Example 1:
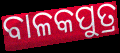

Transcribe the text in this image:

ବାଳକପୁତ୍ର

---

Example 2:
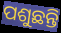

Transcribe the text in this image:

ପଶୁଛନ୍ତି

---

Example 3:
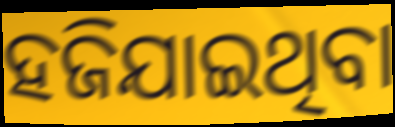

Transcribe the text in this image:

ହଜିଯାଇଥିବା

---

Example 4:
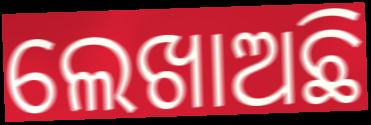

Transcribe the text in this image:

ଲେଖାଅଛି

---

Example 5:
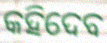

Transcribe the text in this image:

କହିଦେବ